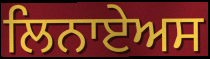
ਲਿਨਾਏਅਸ